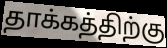
தாக்கத்திற்கு